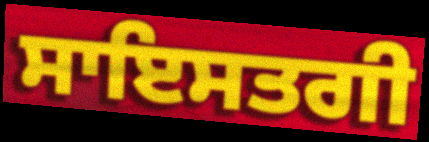
ਸਾਇਸਤਗੀ